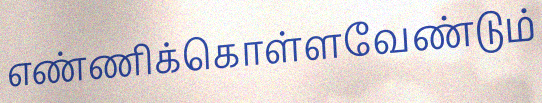
எண்ணிக்கொள்ளவேண்டும்